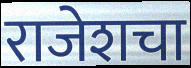
राजेशचा